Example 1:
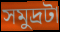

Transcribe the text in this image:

সমুদ্রটা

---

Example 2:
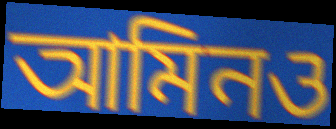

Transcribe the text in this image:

আমিনও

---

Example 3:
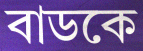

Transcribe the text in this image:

বাডকে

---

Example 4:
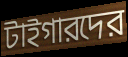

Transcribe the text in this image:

টাইগারদের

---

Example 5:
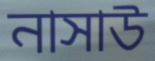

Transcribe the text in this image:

নাসাউ